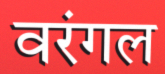
वरंगल